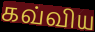
கவ்விய